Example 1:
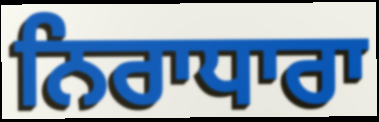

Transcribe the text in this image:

ਨਿਰਾਧਾਰਾ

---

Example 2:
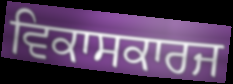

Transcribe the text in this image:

ਵਿਕਾਸਕਾਰਜ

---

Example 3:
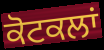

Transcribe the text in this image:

ਕੋਟਕਲਾਂ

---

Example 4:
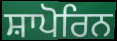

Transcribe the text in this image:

ਸ਼ਾਪੋਰਿਨ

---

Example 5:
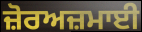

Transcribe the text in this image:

ਜ਼ੋਰਅਜ਼ਮਾਈ